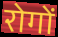
रोगों